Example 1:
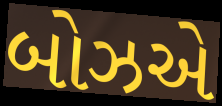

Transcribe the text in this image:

બોઝએ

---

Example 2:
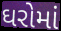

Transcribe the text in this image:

ઘરોમાં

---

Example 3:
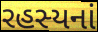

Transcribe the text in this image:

રહસ્યનાં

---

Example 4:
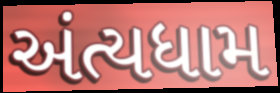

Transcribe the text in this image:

અંત્યધામ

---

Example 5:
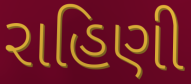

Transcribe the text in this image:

રાહિણી